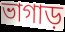
ভাগাড়